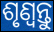
ଶୃଣ୍ଵନ୍ତୁ